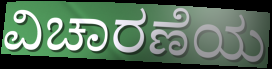
ವಿಚಾರಣೆಯ